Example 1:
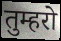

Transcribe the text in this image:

तुम्हरो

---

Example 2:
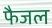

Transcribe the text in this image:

फैजल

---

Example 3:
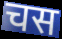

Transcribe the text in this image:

चस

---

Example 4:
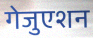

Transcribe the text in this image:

गेजुएशन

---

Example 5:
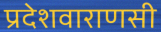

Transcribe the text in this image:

प्रदेशवाराणसी